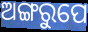
ଅଙ୍ଗରୁପେ